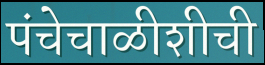
पंचेचाळीशीची